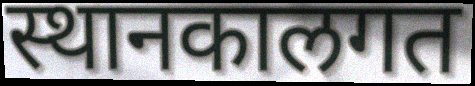
स्थानकालगत